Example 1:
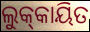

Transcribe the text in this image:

ଲୁକ୍‌କାୟିତ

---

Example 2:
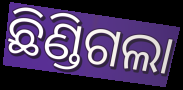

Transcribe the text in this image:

ଛିଣ୍ଡିଗଲା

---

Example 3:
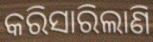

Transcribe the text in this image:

କରିସାରିଲାଣି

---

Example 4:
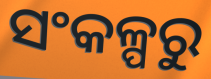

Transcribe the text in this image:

ସଂକଳ୍ପରୁ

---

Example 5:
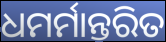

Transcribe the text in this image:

ଧମର୍ମାନ୍ତରିତ